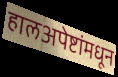
हालअपेष्टांमधून